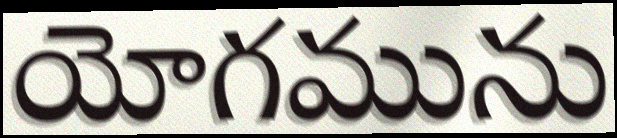
యోగమును